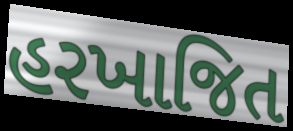
હરખાજિત